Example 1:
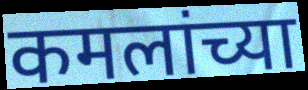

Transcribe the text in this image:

कमलांच्या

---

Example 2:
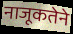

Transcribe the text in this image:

नाजूकतेने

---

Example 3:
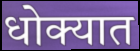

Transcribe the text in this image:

धोक्‍यात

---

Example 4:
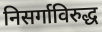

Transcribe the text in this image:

निसर्गाविरुद्ध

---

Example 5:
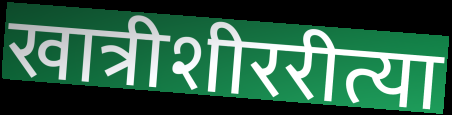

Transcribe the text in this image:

खात्रीशीररीत्या